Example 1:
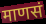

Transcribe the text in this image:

माणसं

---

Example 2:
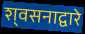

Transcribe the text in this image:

श्वसनाद्वारे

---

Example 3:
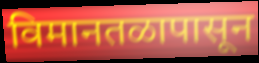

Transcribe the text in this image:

विमानतळापासून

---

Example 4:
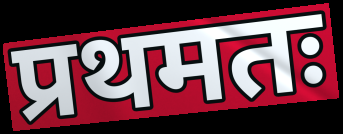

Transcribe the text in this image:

प्रथमतः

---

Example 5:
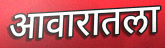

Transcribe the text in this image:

आवारातला